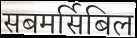
सबमर्सिबिल